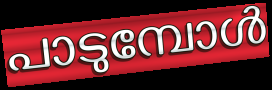
പാടുമ്പോൾ